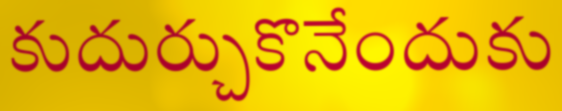
కుదుర్చుకొనేందుకు